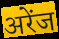
अरेंज